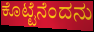
ಕೊಟ್ಟೆನೆಂದನು